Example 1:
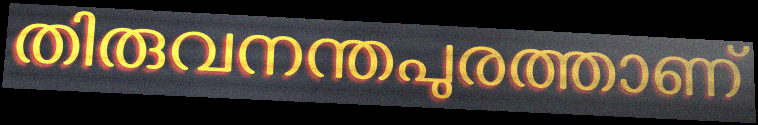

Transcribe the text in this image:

തിരുവനന്തപുരത്താണ്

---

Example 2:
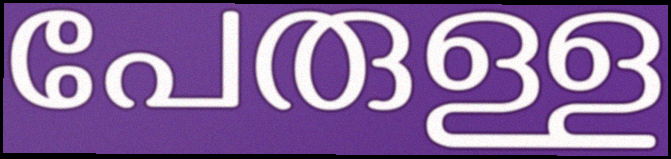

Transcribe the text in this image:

പേരുള്ള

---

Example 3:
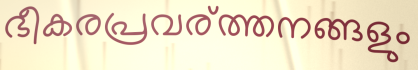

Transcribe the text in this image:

ഭീകരപ്രവര്ത്തനങ്ങളും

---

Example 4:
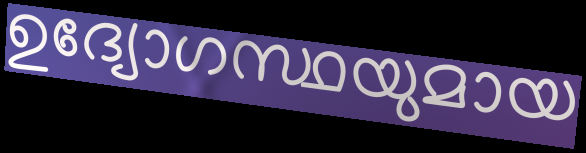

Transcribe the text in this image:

ഉദ്യോഗസ്ഥയുമായ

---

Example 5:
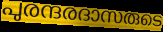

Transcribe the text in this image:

പുരന്ദരദാസരുടെ